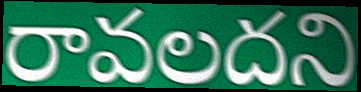
రావలదని